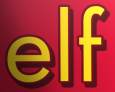
elf